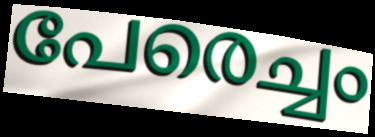
പേരെച്ചം